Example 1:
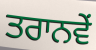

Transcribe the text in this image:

ਤਰਾਨਵੇਂ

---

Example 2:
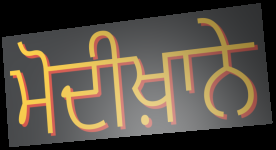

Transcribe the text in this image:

ਮੋਦੀਖ਼ਾਨੇ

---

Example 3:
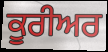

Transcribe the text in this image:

ਕੂਰੀਅਰ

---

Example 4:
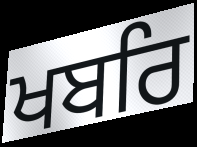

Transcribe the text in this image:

ਖਬਰਿ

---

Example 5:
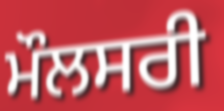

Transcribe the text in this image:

ਮੌਲਸਰੀ